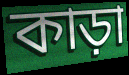
কাড়া